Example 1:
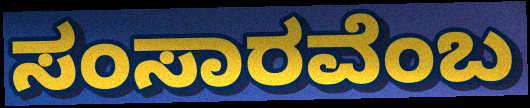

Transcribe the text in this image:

ಸಂಸಾರವೆಂಬ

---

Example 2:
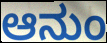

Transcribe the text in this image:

ಆನುಂ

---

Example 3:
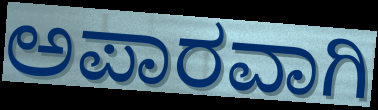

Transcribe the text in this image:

ಅಪಾರವಾಗಿ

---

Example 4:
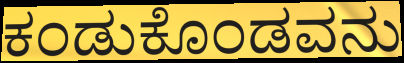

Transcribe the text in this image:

ಕಂಡುಕೊಂಡವನು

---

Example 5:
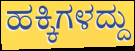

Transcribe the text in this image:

ಹಕ್ಕಿಗಳದ್ದು